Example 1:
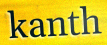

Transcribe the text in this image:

kanth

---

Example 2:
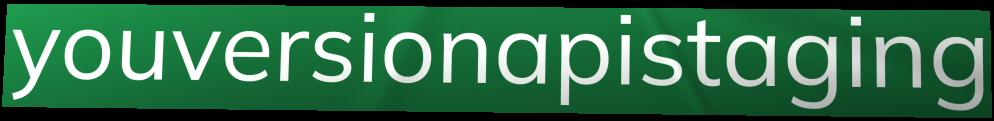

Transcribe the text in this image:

youversionapistaging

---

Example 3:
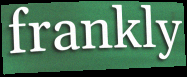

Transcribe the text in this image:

frankly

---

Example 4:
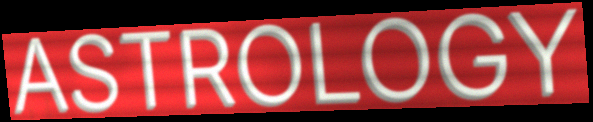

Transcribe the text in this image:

ASTROLOGY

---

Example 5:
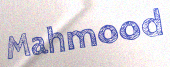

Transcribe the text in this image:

Mahmood